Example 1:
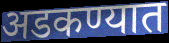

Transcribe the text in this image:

अडकण्यात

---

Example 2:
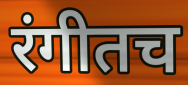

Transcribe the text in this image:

रंगीतच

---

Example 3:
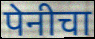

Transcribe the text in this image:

पेनीचा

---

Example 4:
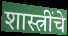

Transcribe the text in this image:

शास्त्रींचे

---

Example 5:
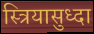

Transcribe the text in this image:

स्त्रियासुध्दा